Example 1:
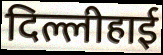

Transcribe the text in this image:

दिल्लीहाई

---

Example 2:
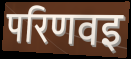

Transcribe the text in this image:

परिणवइ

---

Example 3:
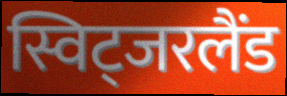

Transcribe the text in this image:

स्विट्जरलैंड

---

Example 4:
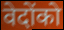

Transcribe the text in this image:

वेदोंको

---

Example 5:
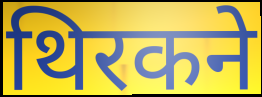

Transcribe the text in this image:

थिरकने